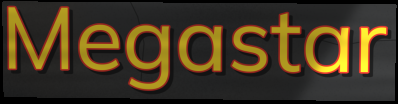
Megastar